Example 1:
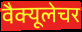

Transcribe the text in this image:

वैक्यूलेचर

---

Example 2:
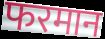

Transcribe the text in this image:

फरमान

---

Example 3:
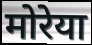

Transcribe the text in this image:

मोरेया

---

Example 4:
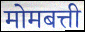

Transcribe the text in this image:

मोमबत्ती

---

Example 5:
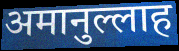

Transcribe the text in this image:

अमानुल्लाह